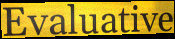
Evaluative